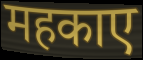
महकाए